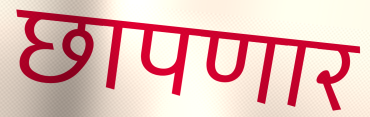
छापणार